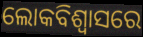
ଲୋକବିଶ୍ୱାସରେ